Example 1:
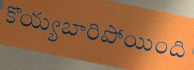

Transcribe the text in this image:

కొయ్యబారిపోయింది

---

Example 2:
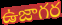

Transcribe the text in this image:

ఉజాగర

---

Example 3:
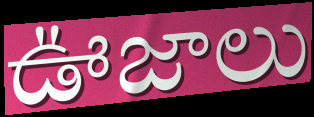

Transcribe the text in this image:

ఊజాలు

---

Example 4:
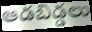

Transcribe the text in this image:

ఆడబిడ్డలు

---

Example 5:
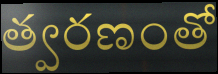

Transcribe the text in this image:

త్వరణంతో